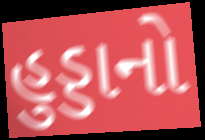
હુડ્ડાનો